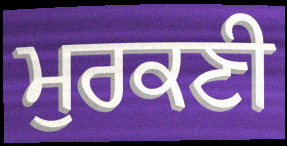
ਮੁਰਕਣੀ